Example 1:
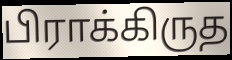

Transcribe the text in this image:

பிராக்கிருத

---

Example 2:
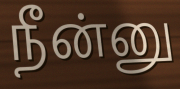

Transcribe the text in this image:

நீன்னு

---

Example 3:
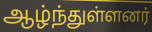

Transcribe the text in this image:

ஆழ்ந்துள்ளனர்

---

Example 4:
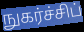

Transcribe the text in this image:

நுகர்ச்சிப்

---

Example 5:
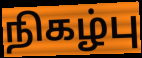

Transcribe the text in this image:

நிகழ்பு